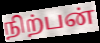
நிற்பன்